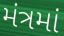
મંત્રમાં